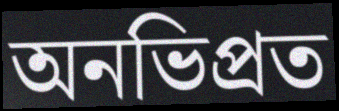
অনভিপ্রত